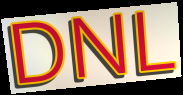
DNL